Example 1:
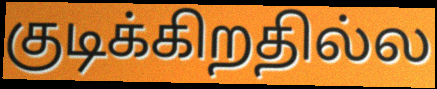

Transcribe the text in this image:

குடிக்கிறதில்ல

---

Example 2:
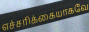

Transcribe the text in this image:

எச்சரிக்கையாகவே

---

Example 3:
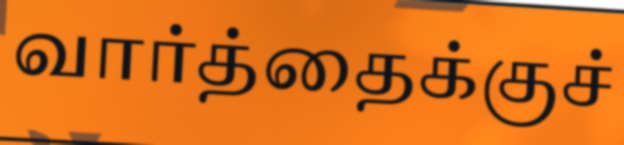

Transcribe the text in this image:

வார்த்தைக்குச்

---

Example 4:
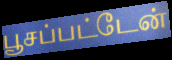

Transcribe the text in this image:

பூசப்பட்டேன்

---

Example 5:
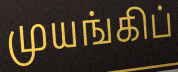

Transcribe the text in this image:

முயங்கிப்